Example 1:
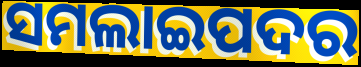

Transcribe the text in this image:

ସମଲାଇପଦର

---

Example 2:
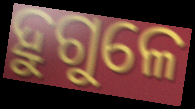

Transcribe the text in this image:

ହୁଗୁଳେ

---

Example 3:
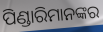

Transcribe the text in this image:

ପିଣ୍ଡାରିମାନଙ୍କର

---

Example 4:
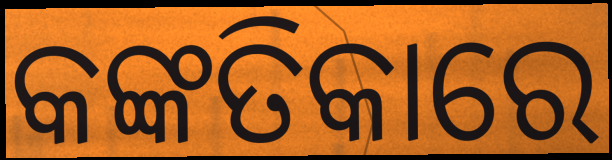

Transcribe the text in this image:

କଙ୍କତିକାରେ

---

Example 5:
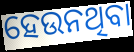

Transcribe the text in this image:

ହେଉନଥିବା